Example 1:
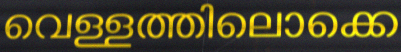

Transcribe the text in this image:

വെള്ളത്തിലൊക്കെ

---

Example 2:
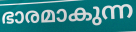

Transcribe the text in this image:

ഭാരമാകുന്ന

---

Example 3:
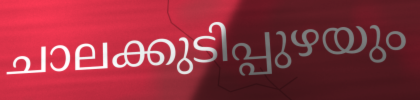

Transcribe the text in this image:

ചാലക്കുടിപ്പുഴയും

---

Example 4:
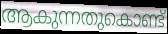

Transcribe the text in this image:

ആകുന്നതുകൊണ്ട്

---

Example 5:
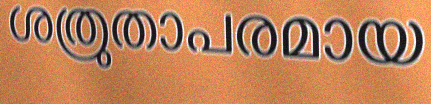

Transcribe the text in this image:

ശത്രുതാപരമായ